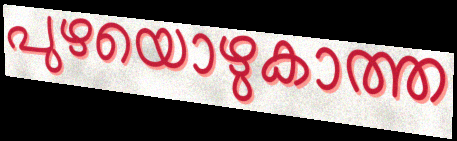
പുഴയൊഴുകാത്ത